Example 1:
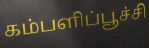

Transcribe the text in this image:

கம்பளிப்பூச்சி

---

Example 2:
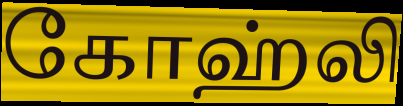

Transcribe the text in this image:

கோஹ்லி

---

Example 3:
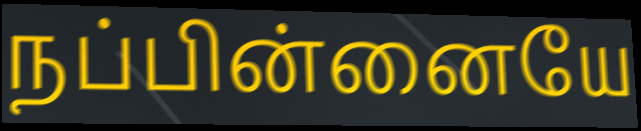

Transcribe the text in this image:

நப்பின்னையே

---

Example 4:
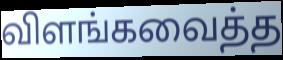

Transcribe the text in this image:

விளங்கவைத்த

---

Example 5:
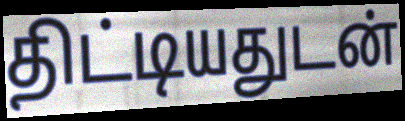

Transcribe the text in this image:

திட்டியதுடன்